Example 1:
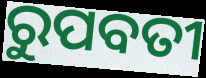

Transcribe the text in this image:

ରୁପବତୀ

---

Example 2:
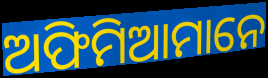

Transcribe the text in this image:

ଅଫିମିଆମାନେ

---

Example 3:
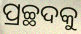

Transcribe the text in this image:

ପ୍ରଚ୍ଛଦକୁ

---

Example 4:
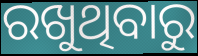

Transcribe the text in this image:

ରଖୁଥିବାରୁ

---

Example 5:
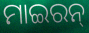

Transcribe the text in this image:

ମାଇରନ୍